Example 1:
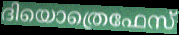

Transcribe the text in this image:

ദിയൊത്രെഫേസ്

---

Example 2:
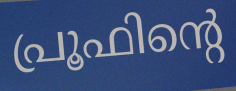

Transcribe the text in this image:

പ്രൂഫിന്റെ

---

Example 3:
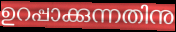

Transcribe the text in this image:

ഉറപ്പാക്കുന്നതിനു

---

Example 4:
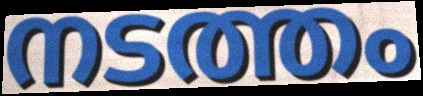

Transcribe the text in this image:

നടത്തം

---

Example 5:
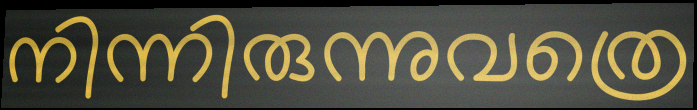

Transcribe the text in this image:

നിന്നിരുന്നുവത്രെ